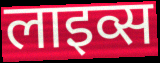
लाइव्स